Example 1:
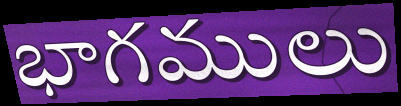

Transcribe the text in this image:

భాగములు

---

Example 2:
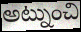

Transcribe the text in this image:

అట్నుంచి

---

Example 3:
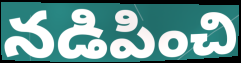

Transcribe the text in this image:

నడిపించి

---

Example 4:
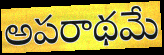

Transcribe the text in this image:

అపరాథమే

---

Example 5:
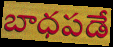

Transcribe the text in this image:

బాధపడే